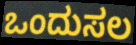
ಒಂದುಸಲ